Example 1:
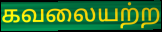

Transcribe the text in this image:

கவலையற்ற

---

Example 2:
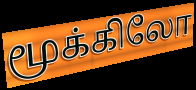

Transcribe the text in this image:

மூக்கிலோ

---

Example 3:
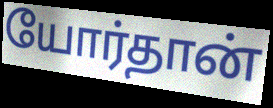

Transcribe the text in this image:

யோர்தான்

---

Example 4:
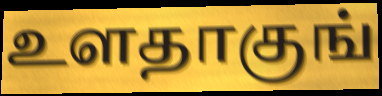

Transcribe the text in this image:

உளதாகுங்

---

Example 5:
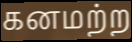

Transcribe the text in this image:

கனமற்ற